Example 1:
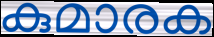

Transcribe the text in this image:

കുമാരക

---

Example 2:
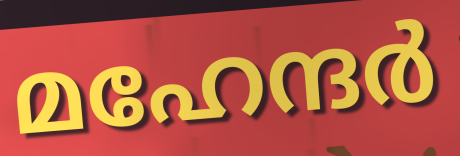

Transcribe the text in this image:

മഹേന്ദർ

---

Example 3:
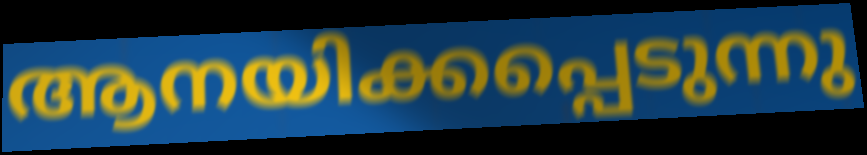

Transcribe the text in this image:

ആനയിക്കപ്പെടുന്നു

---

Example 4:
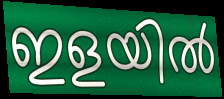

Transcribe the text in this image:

ഇളയിൽ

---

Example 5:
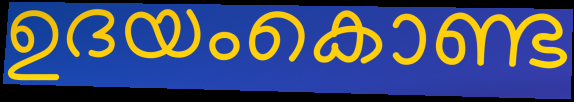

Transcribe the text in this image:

ഉദയംകൊണ്ട